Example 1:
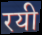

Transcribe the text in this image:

रयी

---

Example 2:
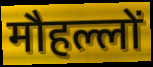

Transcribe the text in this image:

मौहल्लों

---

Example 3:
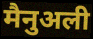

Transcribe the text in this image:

मैनुअली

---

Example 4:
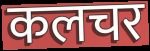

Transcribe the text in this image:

कलचर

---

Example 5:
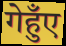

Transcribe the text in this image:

गेहुँए